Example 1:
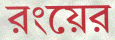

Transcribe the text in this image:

রংয়ের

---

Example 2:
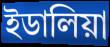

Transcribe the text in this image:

ইডালিয়া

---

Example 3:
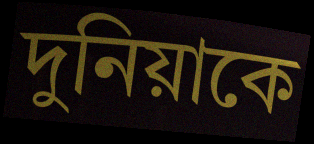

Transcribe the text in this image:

দুনিয়াকে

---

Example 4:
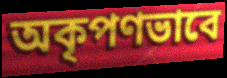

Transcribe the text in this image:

অকৃপণভাবে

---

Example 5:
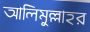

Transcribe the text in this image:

আলিমুল্লাহর